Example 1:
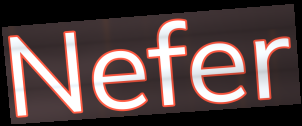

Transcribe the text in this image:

Nefer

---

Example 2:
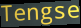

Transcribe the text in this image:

Tengse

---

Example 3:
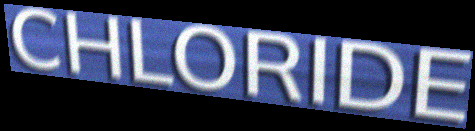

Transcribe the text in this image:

CHLORIDE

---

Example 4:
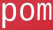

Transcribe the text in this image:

pom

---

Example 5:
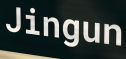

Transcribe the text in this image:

Jingun